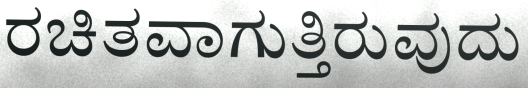
ರಚಿತವಾಗುತ್ತಿರುವುದು